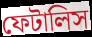
ফেটালিস